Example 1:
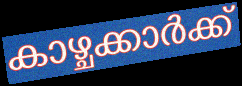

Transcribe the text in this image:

കാഴ്ചക്കാർക്ക്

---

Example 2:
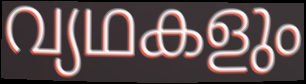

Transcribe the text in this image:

വ്യഥകളും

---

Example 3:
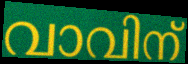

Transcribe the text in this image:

വാവിന്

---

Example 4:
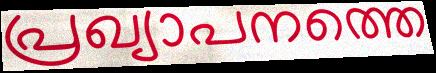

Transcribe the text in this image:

പ്രഖ്യാപനത്തെ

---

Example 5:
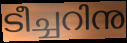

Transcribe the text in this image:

ടീച്ചറിനു